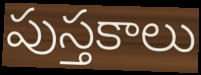
పుస్తకాలు